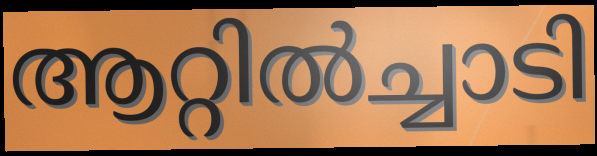
ആറ്റിൽച്ചാടി